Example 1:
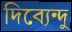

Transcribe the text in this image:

দিব্যেন্দু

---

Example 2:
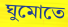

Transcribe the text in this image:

ঘুমোতে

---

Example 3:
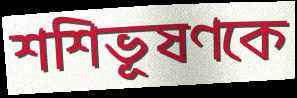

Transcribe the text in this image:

শশিভূষণকে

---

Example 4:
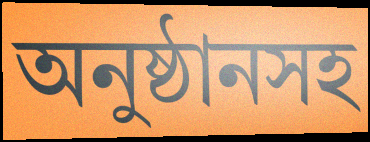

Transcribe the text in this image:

অনুষ্ঠানসহ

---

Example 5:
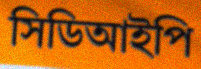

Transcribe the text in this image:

সিডিআইপি